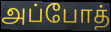
அப்போத்